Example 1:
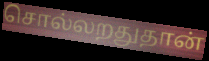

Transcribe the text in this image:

சொல்லறதுதான்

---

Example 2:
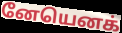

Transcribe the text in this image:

னேயெனக்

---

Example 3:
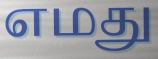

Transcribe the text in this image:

எமது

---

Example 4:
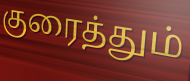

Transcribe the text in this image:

குரைத்தும்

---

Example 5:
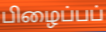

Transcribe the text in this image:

பிழைப்பப்